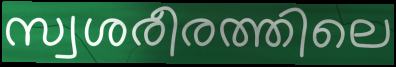
സ്വശരീരത്തിലെ